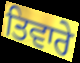
ਤਿਵਾਰੇ